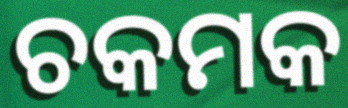
ଚକମକ